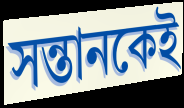
সন্তানকেই